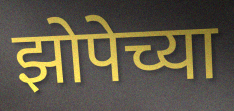
झोपेच्या